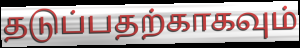
தடுப்பதற்காகவும்